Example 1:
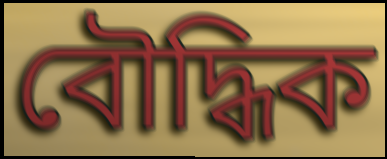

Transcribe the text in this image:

বৌদ্ধিক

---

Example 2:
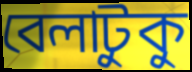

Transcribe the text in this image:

বেলাটুকু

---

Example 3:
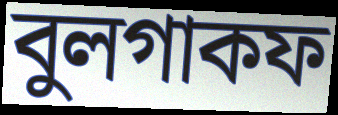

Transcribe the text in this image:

বুলগাকফ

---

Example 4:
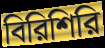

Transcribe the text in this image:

বিরিশিরি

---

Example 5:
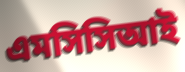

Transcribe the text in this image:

এমসিসিআই